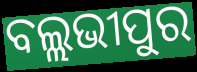
ବଲ୍ଲଭୀପୁର